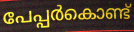
പേപ്പർകൊണ്ട്